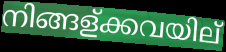
നിങ്ങള്ക്കവയില്